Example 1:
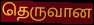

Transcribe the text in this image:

தெருவான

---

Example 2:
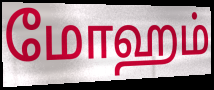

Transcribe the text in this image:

மோஹம்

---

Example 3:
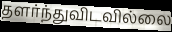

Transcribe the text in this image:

தளர்ந்துவிடவில்லை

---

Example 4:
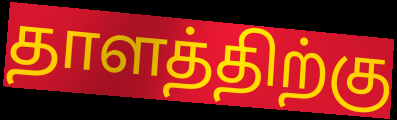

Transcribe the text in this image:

தாளத்திற்கு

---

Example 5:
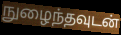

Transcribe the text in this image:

நுழைந்தவுடன்